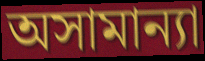
অসামান্যা